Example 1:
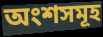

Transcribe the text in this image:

অংশসমূহ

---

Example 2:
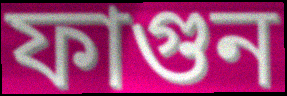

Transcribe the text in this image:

ফাগুন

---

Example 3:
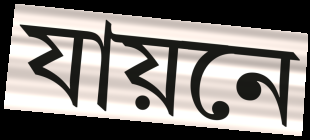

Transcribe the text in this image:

যায়নে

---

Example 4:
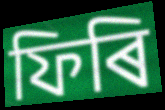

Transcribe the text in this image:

ফিৰি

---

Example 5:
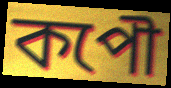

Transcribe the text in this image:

কপৌ